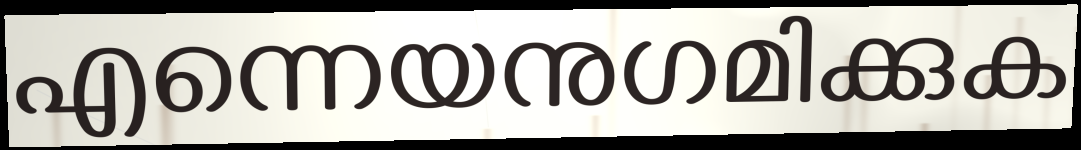
എന്നെയനുഗമിക്കുക